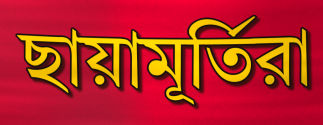
ছায়ামূর্তিরা